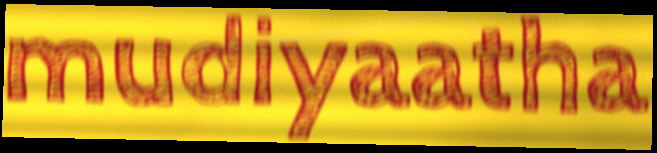
mudiyaatha